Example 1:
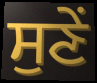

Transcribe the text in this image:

ਸੁਣੇਂ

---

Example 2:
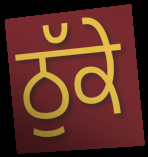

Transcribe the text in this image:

ਠੁੱਕੇ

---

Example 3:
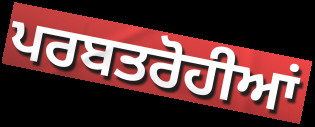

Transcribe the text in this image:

ਪਰਬਤਰੋਹੀਆਂ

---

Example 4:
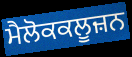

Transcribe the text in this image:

ਮੈਲੋਕਕਲੂਜ਼ਨ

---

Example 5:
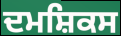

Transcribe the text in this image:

ਦਮਸ਼ਿਕਸ